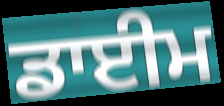
ਡਾਈਮ